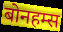
बोनहम्स